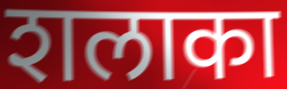
शलाका